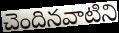
చెందినవాటిని